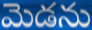
మెడను